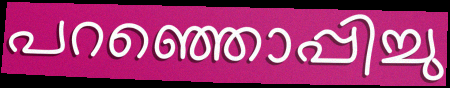
പറഞ്ഞൊപ്പിച്ചു